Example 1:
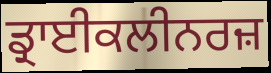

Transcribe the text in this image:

ਡ੍ਰਾਈਕਲੀਨਰਜ਼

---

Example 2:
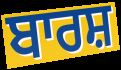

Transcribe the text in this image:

ਬਾਰਸ਼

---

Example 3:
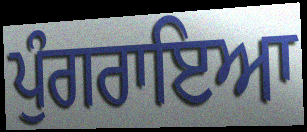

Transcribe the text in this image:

ਪੁੰਗਰਾਇਆ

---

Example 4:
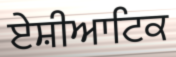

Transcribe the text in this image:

ਏਸ਼ੀਆਟਿਕ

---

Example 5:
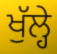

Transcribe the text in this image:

ਖੁੱਲ੍ਹੇ